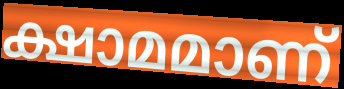
ക്ഷാമമാണ്